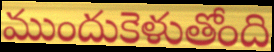
ముందుకెళుతోంది